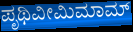
ಪೃಥಿವೀಮಿಮಾಮ್